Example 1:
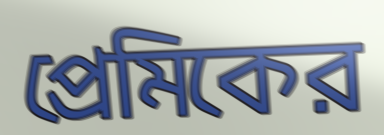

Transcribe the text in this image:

প্রেমিকের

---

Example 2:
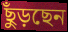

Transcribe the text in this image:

ছুঁড়ছেন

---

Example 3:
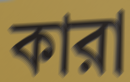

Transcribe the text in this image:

কারা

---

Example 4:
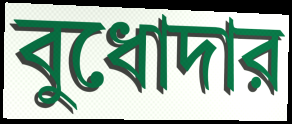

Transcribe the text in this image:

বুধোদার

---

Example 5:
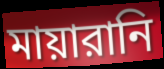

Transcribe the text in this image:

মায়ারানি